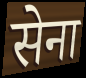
सेना